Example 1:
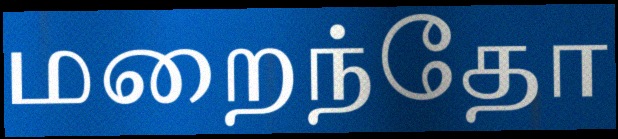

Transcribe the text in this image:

மறைந்தோ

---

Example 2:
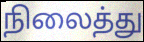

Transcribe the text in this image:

நிலைத்து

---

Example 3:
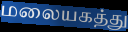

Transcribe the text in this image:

மலையகத்து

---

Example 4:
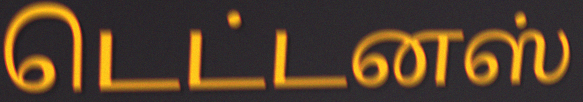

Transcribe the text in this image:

டெட்டனஸ்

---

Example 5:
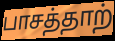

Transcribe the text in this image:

பாசத்தாற்